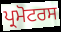
ਪ੍ਰਮੋਟਰਸ